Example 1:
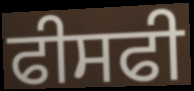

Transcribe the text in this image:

ਫੀਸਫੀ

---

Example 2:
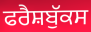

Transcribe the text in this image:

ਫਰੈਸ਼ਬੁੱਕਸ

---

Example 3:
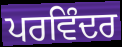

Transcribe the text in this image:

ਪਰਵਿੰਦਰ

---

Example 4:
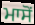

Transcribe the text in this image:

ਮਾਸੋਂ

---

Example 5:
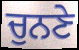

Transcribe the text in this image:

ਚੁਨਣੇ